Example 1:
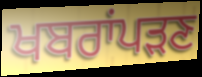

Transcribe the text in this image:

ਖਬਰਾਂਪੜਣ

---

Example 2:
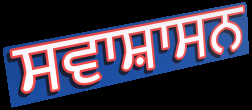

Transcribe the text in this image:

ਸਵਾਸ਼ਾਸਨ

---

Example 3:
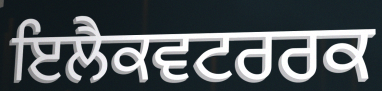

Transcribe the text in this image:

ਇਲੈਕਵਟਰਰਕ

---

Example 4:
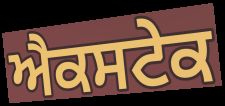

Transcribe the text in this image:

ਐਕਸਟੇਕ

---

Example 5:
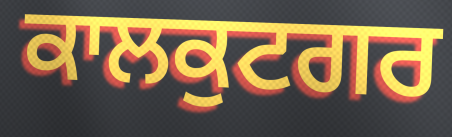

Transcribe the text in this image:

ਕਾਲਕੁਟਗਰ